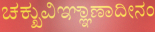
ಚಕ್ಖುವಿಞ್ಞಾಣಾದೀನಂ